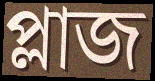
প্লাজ